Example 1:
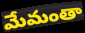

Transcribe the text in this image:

మేమంతా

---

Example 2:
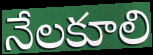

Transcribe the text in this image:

నేలకూలి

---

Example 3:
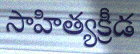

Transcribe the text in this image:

సాహిత్యక్రీడ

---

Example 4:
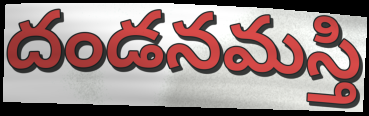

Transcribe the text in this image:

దండనమస్తి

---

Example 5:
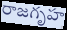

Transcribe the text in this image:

రాజగృహ